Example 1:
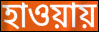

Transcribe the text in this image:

হাওয়ায়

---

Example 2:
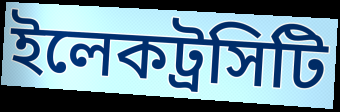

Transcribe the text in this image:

ইলেকট্রসিটি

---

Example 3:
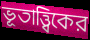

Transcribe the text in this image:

ভূতাত্ত্বিকের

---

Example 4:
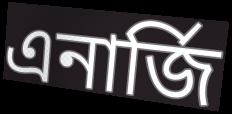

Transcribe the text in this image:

এনার্জি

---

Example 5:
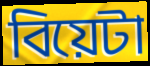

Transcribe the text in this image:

বিয়েটা